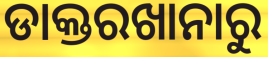
ଡାକ୍ତରଖାନାରୁ